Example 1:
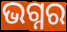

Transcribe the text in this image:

ଭଗ୍ନର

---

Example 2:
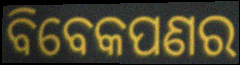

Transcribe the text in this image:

ବିବେକପଣର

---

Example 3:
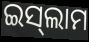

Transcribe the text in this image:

ଇସ୍‌ଲାମ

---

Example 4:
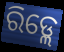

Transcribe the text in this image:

ରିଡ୍ଲେ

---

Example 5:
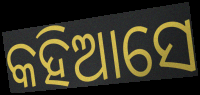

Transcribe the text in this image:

କହିଆସେ